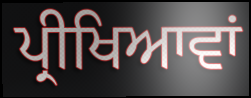
ਪ੍ਰੀਖਿਆਵਾਂ